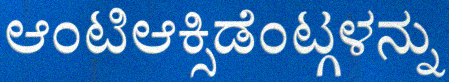
ಆಂಟಿಆಕ್ಸಿಡೆಂಟ್ಗಳನ್ನು